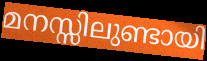
മനസ്സിലുണ്ടായി